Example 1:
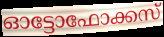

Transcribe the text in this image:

ഓട്ടോഫോക്കസ്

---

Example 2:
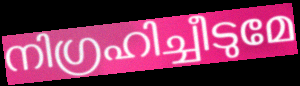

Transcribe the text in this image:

നിഗ്രഹിച്ചീടുമേ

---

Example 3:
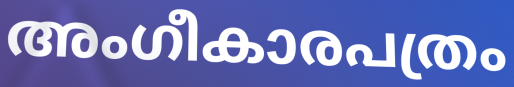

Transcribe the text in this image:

അംഗീകാരപത്രം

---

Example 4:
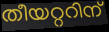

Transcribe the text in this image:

തീയറ്ററിന്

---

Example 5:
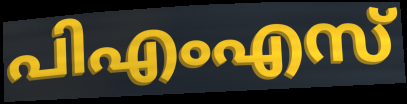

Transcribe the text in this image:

പിഎംഎസ്